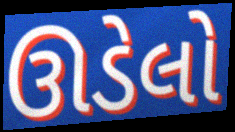
ઊડેલો